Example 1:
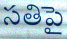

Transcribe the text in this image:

సతిపై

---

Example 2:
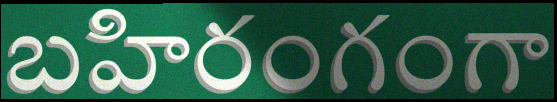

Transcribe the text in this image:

బహిరంగంగా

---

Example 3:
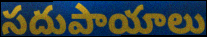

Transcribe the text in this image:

సదుపాయాలు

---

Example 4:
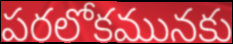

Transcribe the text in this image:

పరలోకమునకు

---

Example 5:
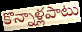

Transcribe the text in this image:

కొన్నాళ్లపాటు